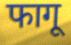
फागू